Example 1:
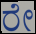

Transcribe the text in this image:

ರೇ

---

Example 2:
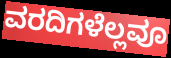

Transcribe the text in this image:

ವರದಿಗಳೆಲ್ಲವೂ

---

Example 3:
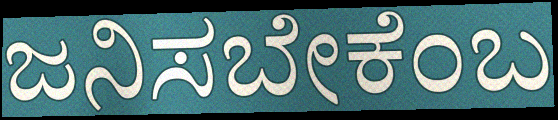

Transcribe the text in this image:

ಜನಿಸಬೇಕೆಂಬ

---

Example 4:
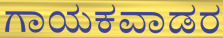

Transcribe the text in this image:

ಗಾಯಕವಾಡರ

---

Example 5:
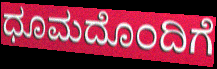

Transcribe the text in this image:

ಧೂಮದೊಂದಿಗೆ